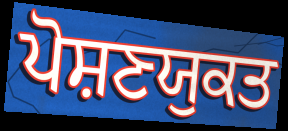
ਪੋਸ਼ਣਯੁਕਤ